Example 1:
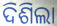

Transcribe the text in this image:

ଦିଶିଲା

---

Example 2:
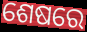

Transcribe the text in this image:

ଶେଷରେ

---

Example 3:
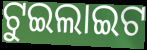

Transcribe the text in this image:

ଟୁଇଲାଇଟ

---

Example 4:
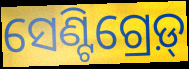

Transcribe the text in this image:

ସେଣ୍ଟିଗ୍ରେଡ଼୍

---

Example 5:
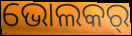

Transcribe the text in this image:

ଭୋଲକର୍